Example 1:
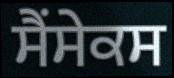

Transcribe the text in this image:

ਸੈਂਸੇਕਸ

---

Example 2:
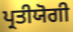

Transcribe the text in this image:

ਪ੍ਰਤੀਯੋਗੀ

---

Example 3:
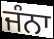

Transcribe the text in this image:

ਜੰਨਾ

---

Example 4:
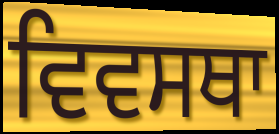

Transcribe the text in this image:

ਵਿਵਸਥਾ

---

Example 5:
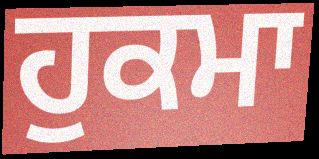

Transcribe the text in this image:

ਹੁਕਮਾ